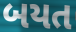
બયત